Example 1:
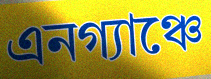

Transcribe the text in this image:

এনগ্যাঞ্চে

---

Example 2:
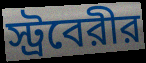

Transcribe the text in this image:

স্ট্রবেরীর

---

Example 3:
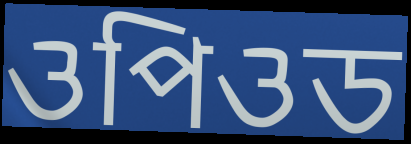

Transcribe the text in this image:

ওপিওড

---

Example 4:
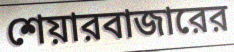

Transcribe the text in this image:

শেয়ারবাজারের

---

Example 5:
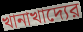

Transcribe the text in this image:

খানাখাদ্যের